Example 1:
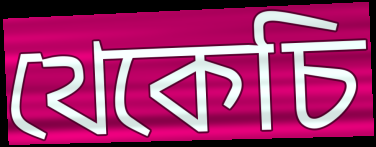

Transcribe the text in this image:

থেকেচি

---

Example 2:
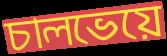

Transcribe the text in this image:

চালভেয়ে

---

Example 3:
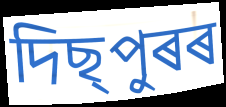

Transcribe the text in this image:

দিছ্পুৰৰ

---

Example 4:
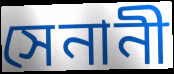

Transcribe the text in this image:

সেনানী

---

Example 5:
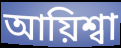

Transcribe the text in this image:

আয়িশ্বা